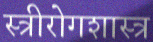
स्त्रीरोगशास्त्र